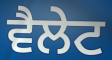
ਵੈਲੇਟ